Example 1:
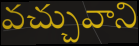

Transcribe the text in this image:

వచ్చువాని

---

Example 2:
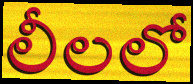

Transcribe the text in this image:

లీలలో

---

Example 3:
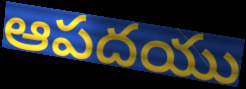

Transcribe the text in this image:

ఆపదయు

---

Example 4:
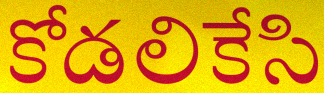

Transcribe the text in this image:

కోడలికేసి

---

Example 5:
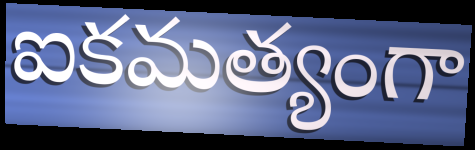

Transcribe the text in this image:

ఐకమత్యంగా